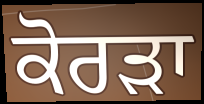
ਕੋਰੜਾ